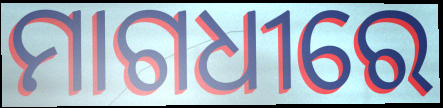
ମାଗଧୀରେ